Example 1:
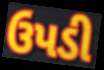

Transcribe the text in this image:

ઉપડી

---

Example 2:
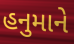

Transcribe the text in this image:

હનુમાને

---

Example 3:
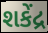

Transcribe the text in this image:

શકેંદ્ર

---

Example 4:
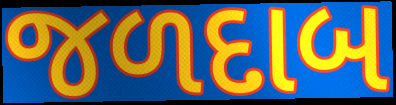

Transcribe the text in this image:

જળદાબ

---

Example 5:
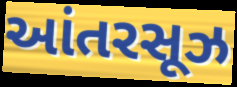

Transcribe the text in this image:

આંતરસૂઝ